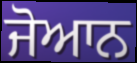
ਜੋਆਨ